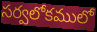
సర్వలోకములో